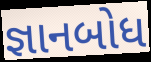
જ્ઞાનબોધ